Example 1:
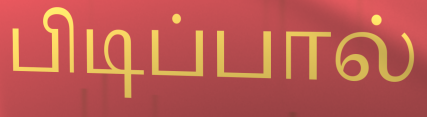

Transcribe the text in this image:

பிடிப்பால்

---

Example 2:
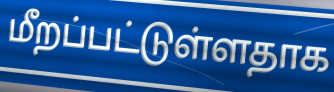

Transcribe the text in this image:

மீறப்பட்டுள்ளதாக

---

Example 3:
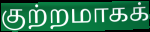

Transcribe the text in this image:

குற்றமாகக்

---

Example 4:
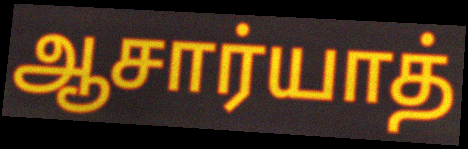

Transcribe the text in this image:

ஆசார்யாத்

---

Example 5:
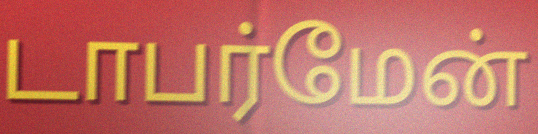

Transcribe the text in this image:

டாபர்மேன்